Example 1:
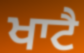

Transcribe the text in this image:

ਖਾਟੈ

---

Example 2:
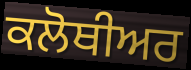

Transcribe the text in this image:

ਕਲੋਥੀਅਰ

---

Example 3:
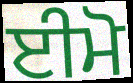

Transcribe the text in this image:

ਈਮੋ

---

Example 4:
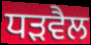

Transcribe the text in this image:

ਧੜਵੈਲ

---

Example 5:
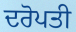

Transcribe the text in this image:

ਦਰੋਪਤੀ